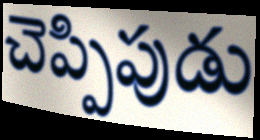
చెప్పిపుడు